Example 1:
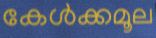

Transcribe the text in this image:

കേൾക്കമൂല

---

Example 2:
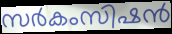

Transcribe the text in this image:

സർകംസിഷൻ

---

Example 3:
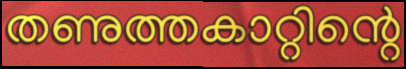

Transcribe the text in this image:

തണുത്തകാറ്റിന്റെ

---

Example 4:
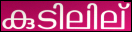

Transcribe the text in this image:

കുടിലില്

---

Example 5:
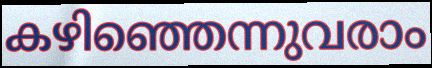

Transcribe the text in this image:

കഴിഞ്ഞെന്നുവരാം